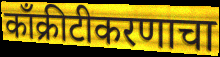
काँक्रीटीकरणाचा